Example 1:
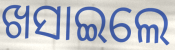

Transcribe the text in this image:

ଖସାଇଲେ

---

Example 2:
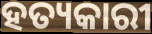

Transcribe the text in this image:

ହତ୍ୟକାରୀ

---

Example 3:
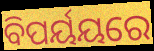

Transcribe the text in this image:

ବିପର୍ୟୟରେ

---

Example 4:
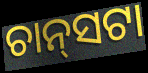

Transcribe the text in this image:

ଚାନ୍‌ସଟା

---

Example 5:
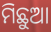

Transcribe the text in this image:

ମିଛୁଆ